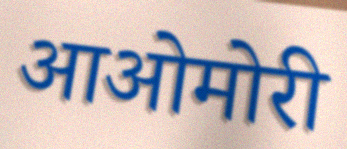
आओमोरी